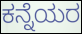
ಕನ್ನೆಯರ